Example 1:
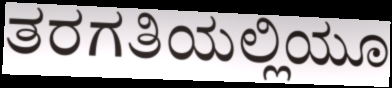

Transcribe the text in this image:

ತರಗತಿಯಲ್ಲಿಯೂ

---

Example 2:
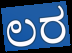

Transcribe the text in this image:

ಲರ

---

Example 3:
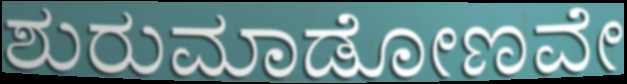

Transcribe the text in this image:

ಶುರುಮಾಡೋಣವೇ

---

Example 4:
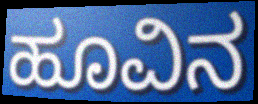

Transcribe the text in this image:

ಹೂವಿನ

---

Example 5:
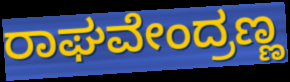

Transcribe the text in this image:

ರಾಘವೇಂದ್ರಣ್ಣ